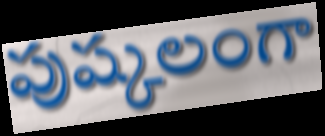
పుష్కలంగా